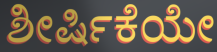
ಶೀರ್ಷಿಕೆಯೇ